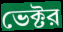
ভেক্টর